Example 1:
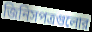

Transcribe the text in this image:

জিনিসপত্রগুলোর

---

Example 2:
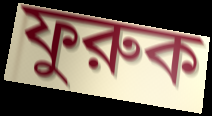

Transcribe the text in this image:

ফুরুক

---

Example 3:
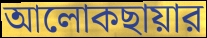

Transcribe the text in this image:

আলোকছায়ার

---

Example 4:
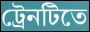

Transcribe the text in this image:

ট্রেনটিতে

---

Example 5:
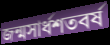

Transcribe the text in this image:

জন্মসার্ধশতবর্ষ